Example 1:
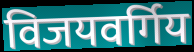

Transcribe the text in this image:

विजयवर्गिय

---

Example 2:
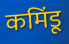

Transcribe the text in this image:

कमिंडू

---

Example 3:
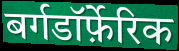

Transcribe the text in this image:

बर्गडॉर्फ़ेरिक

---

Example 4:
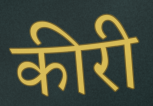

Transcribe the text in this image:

कीरी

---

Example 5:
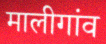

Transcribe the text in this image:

मालीगांव